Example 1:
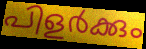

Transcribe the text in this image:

പിളർക്കും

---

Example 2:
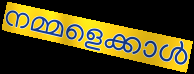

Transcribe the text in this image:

നമ്മളെക്കാൾ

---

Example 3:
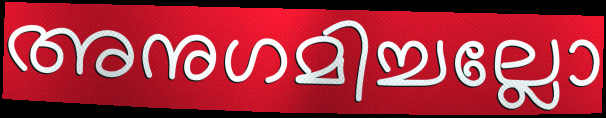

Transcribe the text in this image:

അനുഗമിച്ചല്ലോ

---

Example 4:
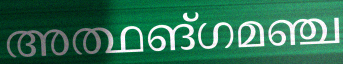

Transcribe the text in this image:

അത്ഥങ്ഗമഞ്ച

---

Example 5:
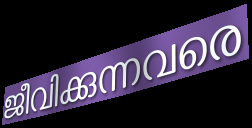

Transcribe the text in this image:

ജീവിക്കുന്നവരെ